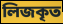
লিজকৃত